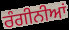
ਰੰਗੀਨੀਆਂ